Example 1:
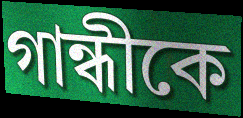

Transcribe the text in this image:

গান্ধীকে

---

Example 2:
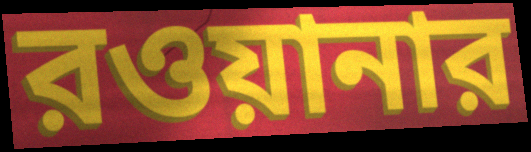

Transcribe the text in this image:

রওয়ানার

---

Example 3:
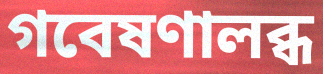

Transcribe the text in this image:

গবেষণালব্ধ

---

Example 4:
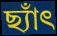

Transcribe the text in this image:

ছ্যাঁৎ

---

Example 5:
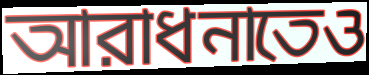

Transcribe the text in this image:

আরাধনাতেও